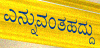
ಎನ್ನುವಂತಹದ್ದು